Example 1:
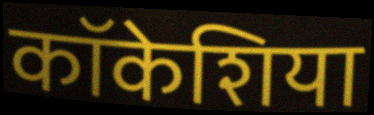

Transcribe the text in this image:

कॉकेशिया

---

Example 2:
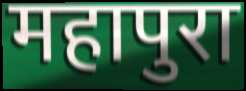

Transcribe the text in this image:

महापुरा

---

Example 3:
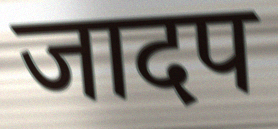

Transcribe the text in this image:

जादप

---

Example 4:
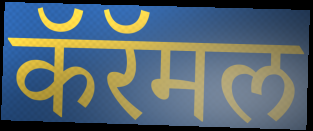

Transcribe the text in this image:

कॅरॅमल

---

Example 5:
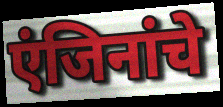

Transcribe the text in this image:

एंजिनांचे